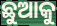
ଛୁଆକୁ